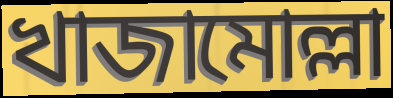
খাজামোল্লা